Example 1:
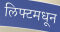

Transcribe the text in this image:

लिफ्टमधून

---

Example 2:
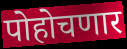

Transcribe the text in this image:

पोहोचणार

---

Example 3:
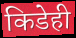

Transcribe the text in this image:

किडेही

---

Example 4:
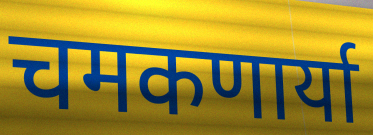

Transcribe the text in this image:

चमकणार्या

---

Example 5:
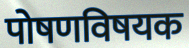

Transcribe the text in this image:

पोषणविषयक